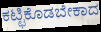
ಕಟ್ಟಿಕೊಡಬೇಕಾದ